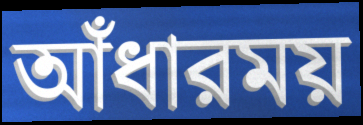
আঁধারময়